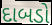
દાબડો